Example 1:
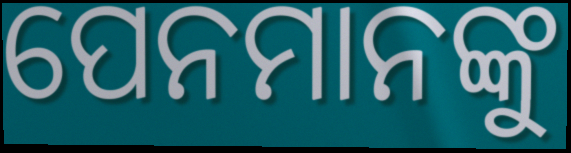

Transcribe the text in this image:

ପେନମାନଙ୍କୁ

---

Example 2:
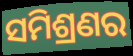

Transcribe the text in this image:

ସମିଶ୍ରଣର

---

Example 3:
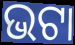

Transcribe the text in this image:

ଭଟା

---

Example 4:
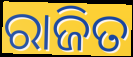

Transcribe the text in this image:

ରାଜିତ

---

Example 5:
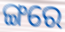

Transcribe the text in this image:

ଙ୍ଗରେ